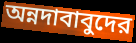
অন্নদাবাবুদের